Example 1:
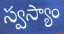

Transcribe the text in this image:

స్వస్యాం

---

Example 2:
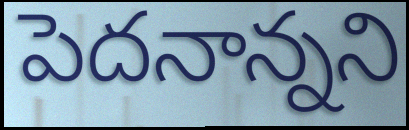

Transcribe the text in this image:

పెదనాన్నని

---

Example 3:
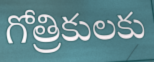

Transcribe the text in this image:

గోత్రికులకు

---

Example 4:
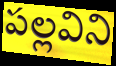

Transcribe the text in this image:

పల్లవిని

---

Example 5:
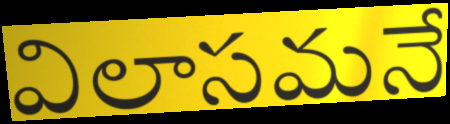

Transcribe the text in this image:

విలాసమనే